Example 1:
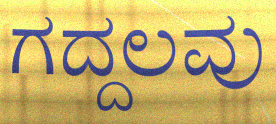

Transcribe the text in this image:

ಗದ್ದಲವು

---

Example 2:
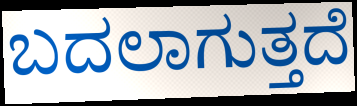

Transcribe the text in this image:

ಬದಲಾಗುತ್ತದೆ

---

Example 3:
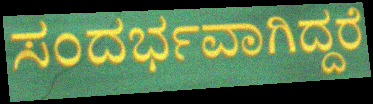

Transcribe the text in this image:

ಸಂದರ್ಭವಾಗಿದ್ದರೆ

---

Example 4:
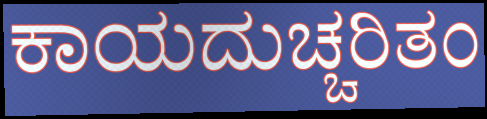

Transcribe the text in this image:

ಕಾಯದುಚ್ಚರಿತಂ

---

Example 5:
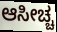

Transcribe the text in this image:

ಆಸೀಚ್ಚ